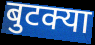
बुटक्या